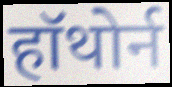
हॉथोर्न